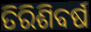
ତିରିଶିବର୍ଷ